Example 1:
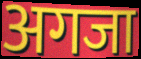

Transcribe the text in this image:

अगजा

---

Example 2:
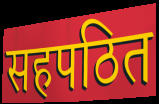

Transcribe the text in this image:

सहपठित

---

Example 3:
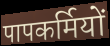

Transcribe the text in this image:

पापकर्मियों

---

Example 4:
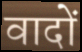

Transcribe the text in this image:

वादों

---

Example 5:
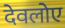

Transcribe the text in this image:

देवलोए